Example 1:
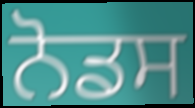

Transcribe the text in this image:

ਨੋਡਸ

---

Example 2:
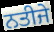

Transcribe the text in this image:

ਨਤੀਜੇ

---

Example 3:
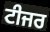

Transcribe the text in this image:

ਟੀਜਰ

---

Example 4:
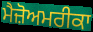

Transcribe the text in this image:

ਮੈਜ਼ੋਅਮਰੀਕਾ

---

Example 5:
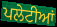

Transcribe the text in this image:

ਪਲੇਟੀਆਂ